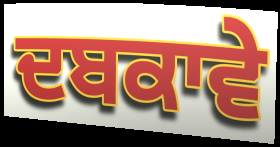
ਦਬਕਾਵੇ